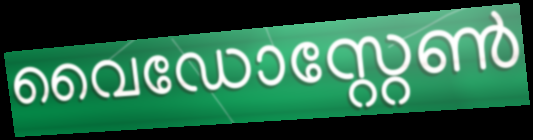
വൈഡോസ്റ്റേൺ